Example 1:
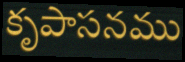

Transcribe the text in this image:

కృపాసనము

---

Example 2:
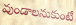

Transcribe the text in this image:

వుండాలనుకుంటే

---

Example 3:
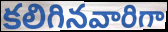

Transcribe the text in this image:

కలిగినవారిగా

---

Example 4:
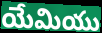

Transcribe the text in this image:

యేమియు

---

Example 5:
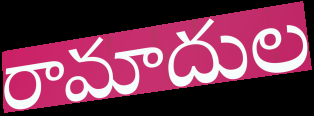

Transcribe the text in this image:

రామాదుల